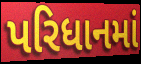
પરિધાનમાં